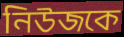
নিউজকে